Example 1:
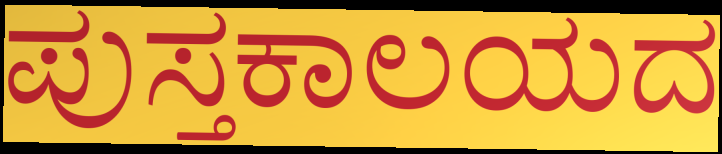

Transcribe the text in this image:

ಪುಸ್ತಕಾಲಯದ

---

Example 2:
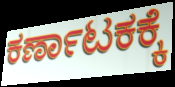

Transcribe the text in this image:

ಕರ್ಣಾಟಕಕ್ಕೆ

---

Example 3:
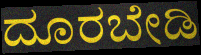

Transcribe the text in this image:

ದೂರಬೇಡಿ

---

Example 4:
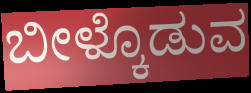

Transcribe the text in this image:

ಬೀಳ್ಕೊಡುವ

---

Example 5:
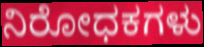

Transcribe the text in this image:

ನಿರೋಧಕಗಳು